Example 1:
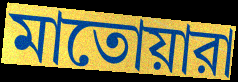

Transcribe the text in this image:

মাতোয়ারা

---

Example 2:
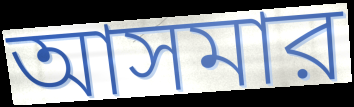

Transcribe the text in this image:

আসমার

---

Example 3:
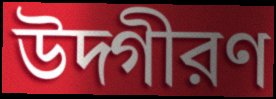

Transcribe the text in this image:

উদ্গীরণ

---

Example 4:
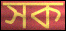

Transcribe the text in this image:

সক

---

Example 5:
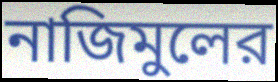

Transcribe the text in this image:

নাজিমুলের